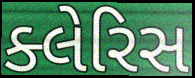
ક્લેરિસ